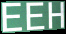
EEH